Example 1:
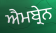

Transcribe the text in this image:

ਐਮਬ੍ਰੇਨ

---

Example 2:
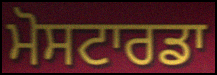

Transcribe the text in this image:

ਮੋਸਟਾਰਡਾ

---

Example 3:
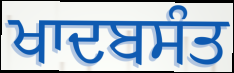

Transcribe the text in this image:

ਖਾਦਬਸੰਤ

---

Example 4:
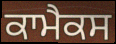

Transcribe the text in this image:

ਕਾਮੈਕਸ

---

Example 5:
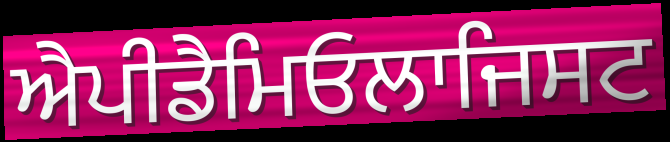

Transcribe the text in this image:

ਐਪੀਡੈਮਿਓਲਾਜਿਸਟ